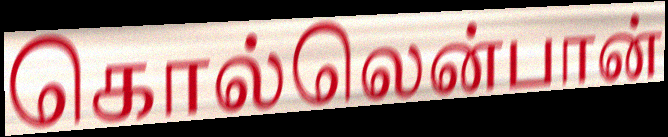
கொல்லென்பான்